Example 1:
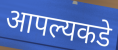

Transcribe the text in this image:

आपल्यकडे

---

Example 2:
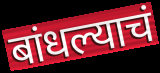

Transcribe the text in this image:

बांधल्याचं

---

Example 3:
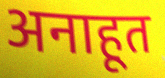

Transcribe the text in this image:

अनाहूत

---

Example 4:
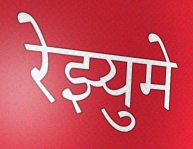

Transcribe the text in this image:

रेझ्युमे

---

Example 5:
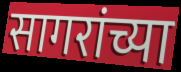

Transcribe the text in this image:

सागरांच्या